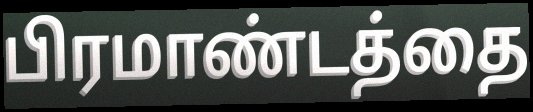
பிரமாண்டத்தை